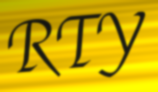
RTY